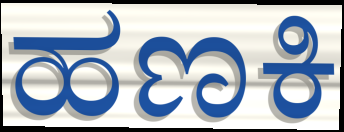
ಹಣಕಿ